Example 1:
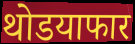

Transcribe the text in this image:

थोडयाफार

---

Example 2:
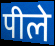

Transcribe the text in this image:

पीले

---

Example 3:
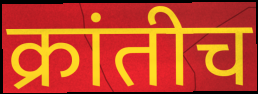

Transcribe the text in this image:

क्रांतीच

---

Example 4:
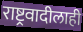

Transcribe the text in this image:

राष्ट्रवादीलाही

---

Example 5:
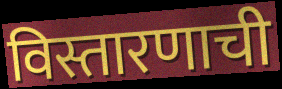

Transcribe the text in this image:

विस्तारणाची